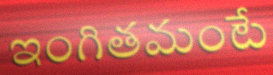
ఇంగితమంటే